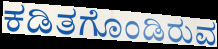
ಕಡಿತಗೊಂಡಿರುವ